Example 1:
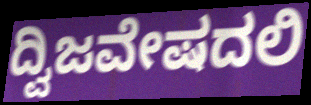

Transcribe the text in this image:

ದ್ವಿಜವೇಷದಲಿ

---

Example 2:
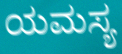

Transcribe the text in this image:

ಯಮಸ್ಯ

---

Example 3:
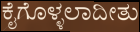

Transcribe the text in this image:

ಕೈಗೊಳ್ಳಲಾದೀತು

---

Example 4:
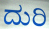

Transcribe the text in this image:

ದುರಿ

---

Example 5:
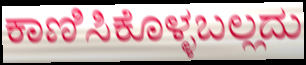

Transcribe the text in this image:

ಕಾಣಿಸಿಕೊಳ್ಳಬಲ್ಲದು